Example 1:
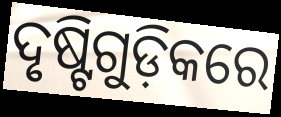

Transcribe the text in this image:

ଦୃଷ୍ଟିଗୁଡ଼ିକରେ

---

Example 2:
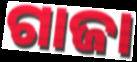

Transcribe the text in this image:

ଗାଜା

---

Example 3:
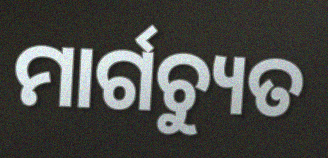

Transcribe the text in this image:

ମାର୍ଗଚ୍ୟୁତ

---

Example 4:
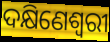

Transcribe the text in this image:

ଦକ୍ଷିଣେଶ୍ଵରୀ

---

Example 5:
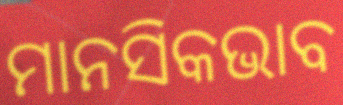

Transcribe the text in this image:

ମାନସିକଭାବ